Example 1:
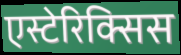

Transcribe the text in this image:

एस्टेरिक्सिस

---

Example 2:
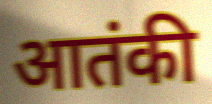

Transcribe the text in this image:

आतंकी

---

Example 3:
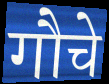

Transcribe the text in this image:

गौचे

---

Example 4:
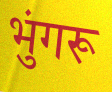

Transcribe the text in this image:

भुंगरू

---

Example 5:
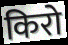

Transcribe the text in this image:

किरो